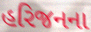
હરિજનના